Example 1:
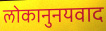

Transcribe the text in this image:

लोकानुनयवाद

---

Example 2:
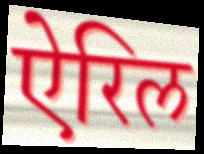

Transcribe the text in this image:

ऐरिल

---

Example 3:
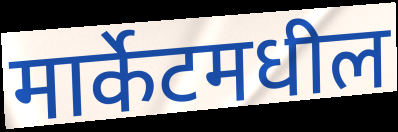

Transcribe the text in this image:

मार्केटमधील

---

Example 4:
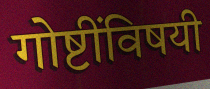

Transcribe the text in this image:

गोष्टींविषयी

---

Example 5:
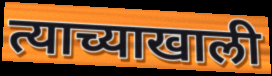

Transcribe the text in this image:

त्याच्याखाली